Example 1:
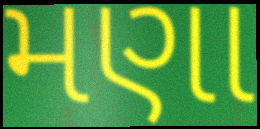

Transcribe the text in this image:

મણા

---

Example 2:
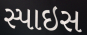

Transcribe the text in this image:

સ્પાઇસ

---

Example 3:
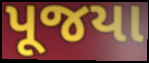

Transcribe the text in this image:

પૂજયા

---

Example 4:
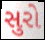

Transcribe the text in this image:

સુરો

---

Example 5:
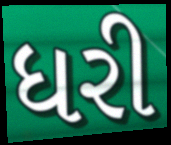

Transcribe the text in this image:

ધરી